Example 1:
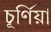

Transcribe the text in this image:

চূর্ণিয়া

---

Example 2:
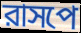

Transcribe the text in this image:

রাসপে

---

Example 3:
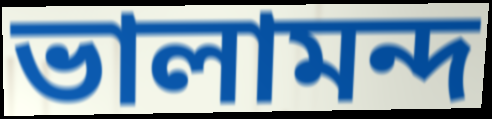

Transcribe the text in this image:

ভালামন্দ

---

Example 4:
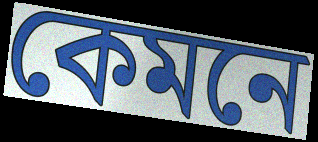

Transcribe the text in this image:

কেমনে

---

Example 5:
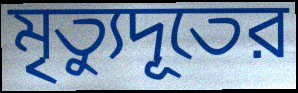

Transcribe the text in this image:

মৃত্যুদূতের